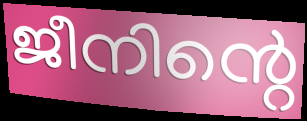
ജീനിന്റെ